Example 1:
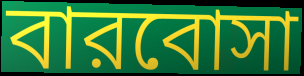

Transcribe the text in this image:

বারবোসা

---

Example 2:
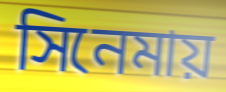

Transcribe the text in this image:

সিনেমায়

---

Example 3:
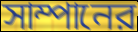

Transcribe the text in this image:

সাম্পানের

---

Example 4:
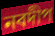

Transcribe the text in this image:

নবদীপ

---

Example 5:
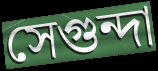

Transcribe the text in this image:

সেগুন্দা